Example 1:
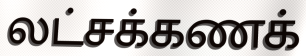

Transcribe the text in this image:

லட்சக்கணக்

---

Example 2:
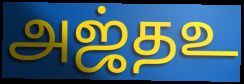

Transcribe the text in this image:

அஜ்தஉ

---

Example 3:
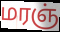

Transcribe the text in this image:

மரஞ்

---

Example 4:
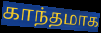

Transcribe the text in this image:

காந்தமாக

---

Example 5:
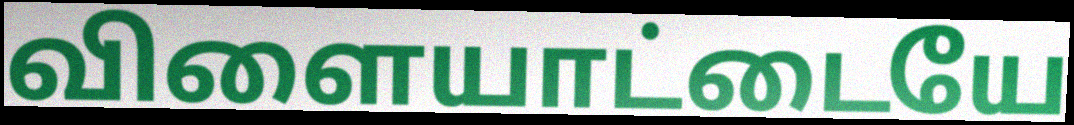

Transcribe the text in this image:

விளையாட்டையே